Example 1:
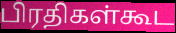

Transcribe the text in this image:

பிரதிகள்கூட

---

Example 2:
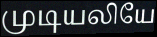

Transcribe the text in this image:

முடியலியே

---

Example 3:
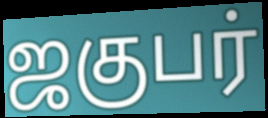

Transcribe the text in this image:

ஜகுபர்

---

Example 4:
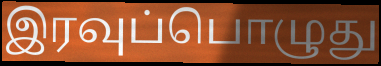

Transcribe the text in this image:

இரவுப்பொழுது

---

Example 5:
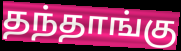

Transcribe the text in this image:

தந்தாங்கு